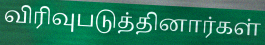
விரிவுபடுத்தினார்கள்